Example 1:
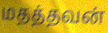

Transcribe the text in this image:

மதத்தவன்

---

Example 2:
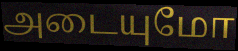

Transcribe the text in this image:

அடையுமோ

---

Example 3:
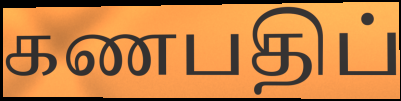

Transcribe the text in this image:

கணபதிப்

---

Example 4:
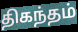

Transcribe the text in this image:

திகந்தம்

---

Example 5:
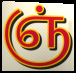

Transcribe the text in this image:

ஞ்